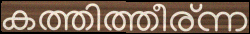
കത്തിത്തീര്ന്ന